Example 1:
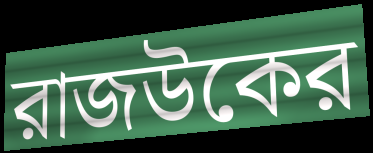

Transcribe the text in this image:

রাজউকের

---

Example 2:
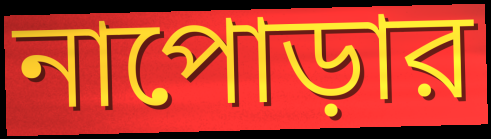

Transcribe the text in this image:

নাপোড়ার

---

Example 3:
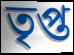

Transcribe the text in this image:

তৃপ্ত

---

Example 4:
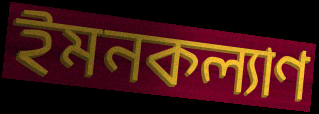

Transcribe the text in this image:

ইমনকল্যাণ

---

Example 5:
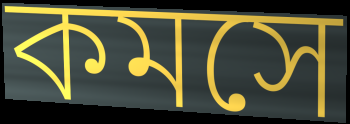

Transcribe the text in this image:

কমসে